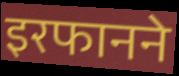
इरफानने